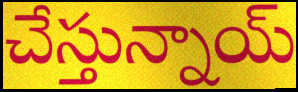
చేస్తున్నాయ్